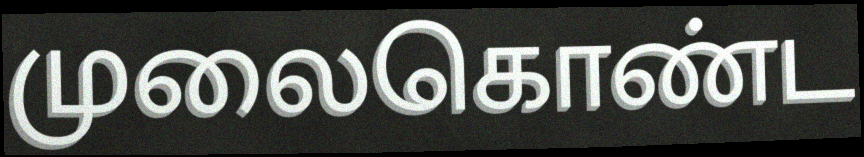
முலைகொண்ட